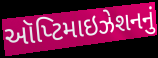
ઑપ્ટિમાઇઝેશનનું